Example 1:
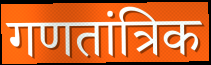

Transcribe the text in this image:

गणतांत्रिक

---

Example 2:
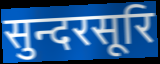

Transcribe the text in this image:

सुन्दरसूरि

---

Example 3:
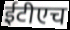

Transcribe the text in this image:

ईटीएच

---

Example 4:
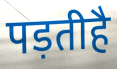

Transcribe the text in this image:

पड़तीहै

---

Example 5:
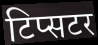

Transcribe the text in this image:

टिप्सटर